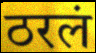
ठरलं